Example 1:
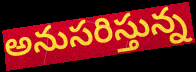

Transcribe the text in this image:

అనుసరిస్తున్న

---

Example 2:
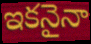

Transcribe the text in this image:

ఇకనైనా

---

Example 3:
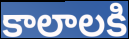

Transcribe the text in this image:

కాలాలకి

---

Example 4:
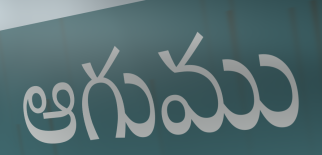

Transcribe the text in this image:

ఆగుము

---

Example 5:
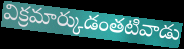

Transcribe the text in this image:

విక్రమార్కుడంతటివాడు